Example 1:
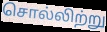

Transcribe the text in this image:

சொல்லிற்று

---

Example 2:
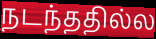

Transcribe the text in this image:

நடந்ததில்ல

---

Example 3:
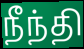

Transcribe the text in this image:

நீந்தி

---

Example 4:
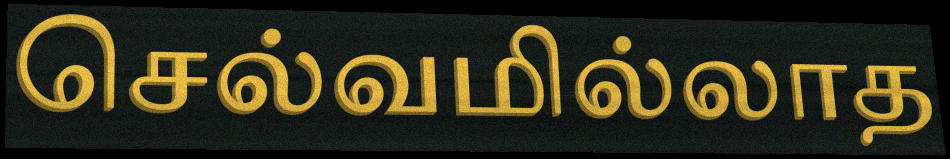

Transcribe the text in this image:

செல்வமில்லாத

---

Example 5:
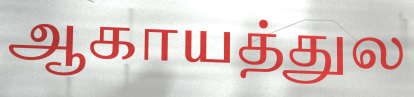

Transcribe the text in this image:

ஆகாயத்துல